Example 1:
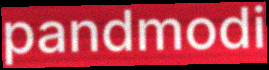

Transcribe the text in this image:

pandmodi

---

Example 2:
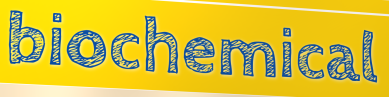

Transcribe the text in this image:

biochemical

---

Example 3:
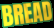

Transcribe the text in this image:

BREAD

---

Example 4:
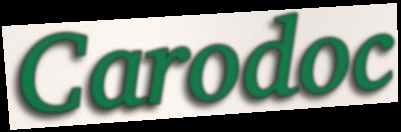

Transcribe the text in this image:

Carodoc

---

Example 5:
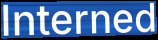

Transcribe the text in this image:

Interned